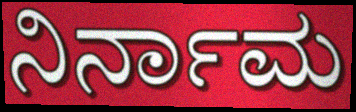
ನಿರ್ನಾಮ